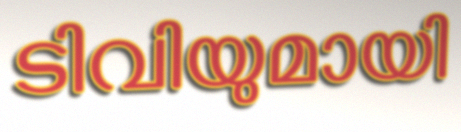
ടിവിയുമായി